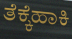
ತೆಕ್ಕೆಹಾಕಿ